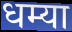
धम्या